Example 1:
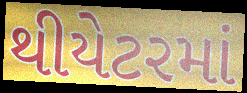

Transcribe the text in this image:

થીયેટરમાં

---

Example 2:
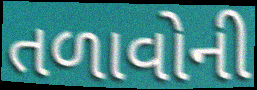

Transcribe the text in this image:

તળાવોની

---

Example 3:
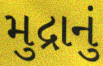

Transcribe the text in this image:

મુદ્રાનું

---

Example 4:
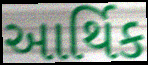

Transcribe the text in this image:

આર્થિક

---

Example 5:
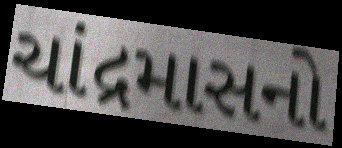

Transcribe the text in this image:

ચાંદ્રમાસનો